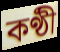
কণ্ঠী